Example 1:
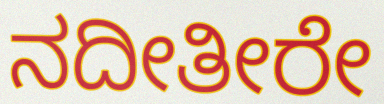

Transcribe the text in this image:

ನದೀತೀರೇ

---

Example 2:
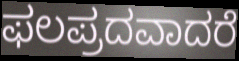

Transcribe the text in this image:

ಫಲಪ್ರದವಾದರೆ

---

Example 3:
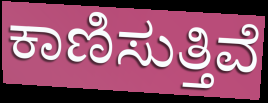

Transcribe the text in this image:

ಕಾಣಿಸುತ್ತಿವೆ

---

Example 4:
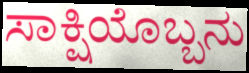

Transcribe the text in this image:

ಸಾಕ್ಷಿಯೊಬ್ಬನು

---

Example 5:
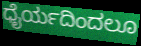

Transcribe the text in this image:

ಧೈರ್ಯದಿಂದಲೂ